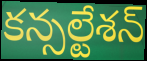
కన్సల్టేశన్